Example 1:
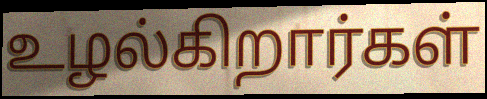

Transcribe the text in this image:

உழல்கிறார்கள்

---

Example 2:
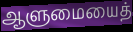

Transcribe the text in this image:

ஆளுமையைத்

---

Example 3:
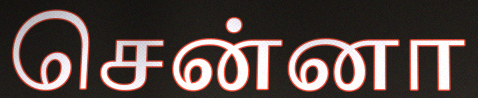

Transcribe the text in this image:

சென்னா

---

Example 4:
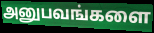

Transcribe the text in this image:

அனுபவங்களை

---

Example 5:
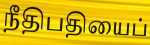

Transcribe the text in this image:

நீதிபதியைப்